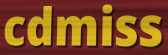
cdmiss